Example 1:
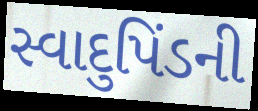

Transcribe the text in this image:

સ્વાદુપિંડની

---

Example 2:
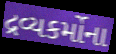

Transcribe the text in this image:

દ્રવ્યકર્મોના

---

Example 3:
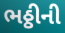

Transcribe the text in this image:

ભઠ્ઠીની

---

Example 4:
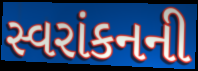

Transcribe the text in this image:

સ્વરાંકનની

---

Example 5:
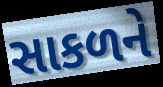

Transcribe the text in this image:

સાકળને